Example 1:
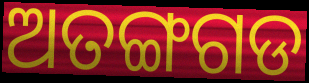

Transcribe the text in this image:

ଅତଙ୍ଗଗଡ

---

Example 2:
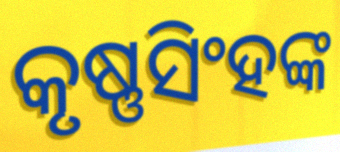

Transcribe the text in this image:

କୃଷ୍ଣସିଂହଙ୍କ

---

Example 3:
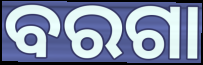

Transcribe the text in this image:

ବରଗା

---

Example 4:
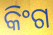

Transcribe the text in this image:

କିଂଗ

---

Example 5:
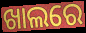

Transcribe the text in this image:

ଖାଲରେ